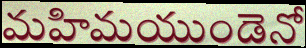
మహిమయుండెనో